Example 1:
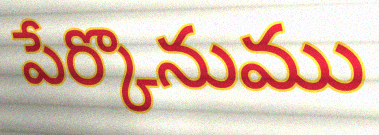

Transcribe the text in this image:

పేర్కొనుము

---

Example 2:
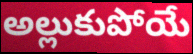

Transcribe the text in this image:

అల్లుకుపోయే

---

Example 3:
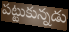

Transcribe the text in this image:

పట్టుకున్నడు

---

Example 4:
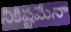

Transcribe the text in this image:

నీకిష్టమేనా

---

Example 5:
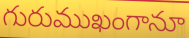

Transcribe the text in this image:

గురుముఖంగానూ